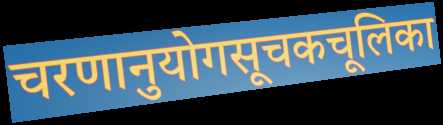
चरणानुयोगसूचकचूलिका